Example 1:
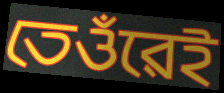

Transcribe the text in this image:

তেওঁৱেই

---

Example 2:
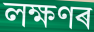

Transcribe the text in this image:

লক্ষণৰ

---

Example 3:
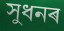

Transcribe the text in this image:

সুধনৰ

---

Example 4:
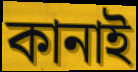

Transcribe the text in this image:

কানাই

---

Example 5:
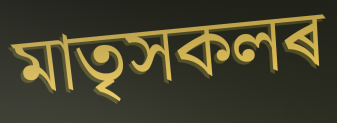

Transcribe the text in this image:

মাতৃসকলৰ